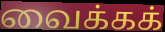
வைக்கக்